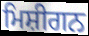
ਮਿਸ਼ੀਗਨ